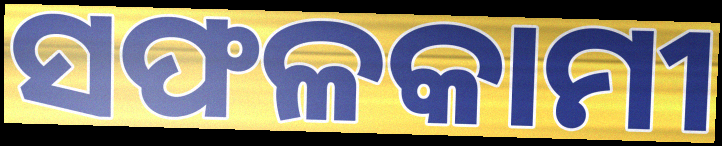
ସଫଳକାମୀ